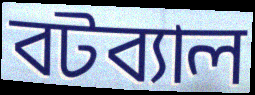
বটব্যাল